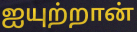
ஐயுற்றான்